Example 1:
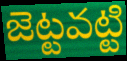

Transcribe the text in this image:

జెట్టవట్టి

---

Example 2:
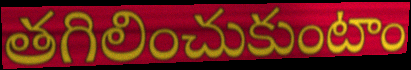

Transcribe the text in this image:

తగిలించుకుంటాం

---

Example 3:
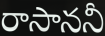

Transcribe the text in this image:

రాసాననీ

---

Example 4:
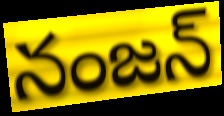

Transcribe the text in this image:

నంజన్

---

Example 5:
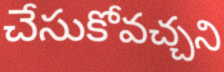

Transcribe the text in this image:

చేసుకోవచ్చని